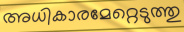
അധികാരമേറ്റെടുത്തു